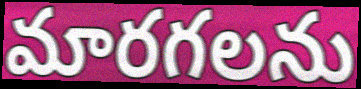
మారగలను